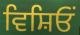
ਵਿਸ਼ਿਓਂ